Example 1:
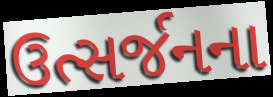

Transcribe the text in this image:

ઉત્સર્જનના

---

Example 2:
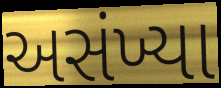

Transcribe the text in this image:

અસંખ્યા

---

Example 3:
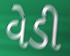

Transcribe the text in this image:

વેડી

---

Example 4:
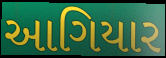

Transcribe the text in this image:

આગિયાર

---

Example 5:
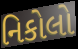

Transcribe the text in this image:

નિકોલો